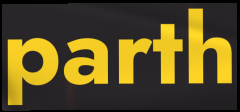
parth